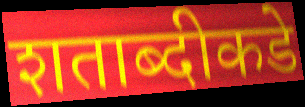
शताब्दीकडे